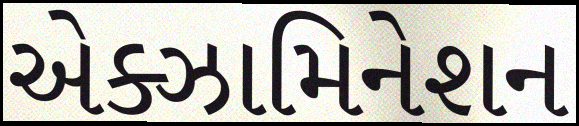
એક્ઝામિનેશન